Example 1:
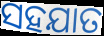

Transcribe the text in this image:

ସହଯାତ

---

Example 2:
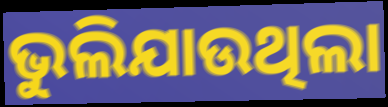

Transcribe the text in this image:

ଭୁଲିଯାଉଥିଲା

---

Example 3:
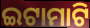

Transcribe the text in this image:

ଇଟାମାଟି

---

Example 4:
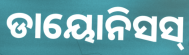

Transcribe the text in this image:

ଡାୟୋନିସସ୍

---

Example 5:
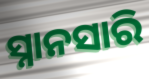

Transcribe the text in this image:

ସ୍ନାନସାରି